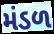
મંડળ